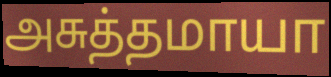
அசுத்தமாயா